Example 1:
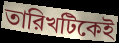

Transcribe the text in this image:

তারিখটিকেই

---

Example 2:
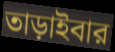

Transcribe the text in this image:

তাড়াইবার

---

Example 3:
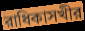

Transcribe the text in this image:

রাধিকাসখীর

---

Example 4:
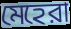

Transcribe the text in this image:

মেহেরা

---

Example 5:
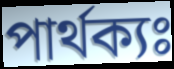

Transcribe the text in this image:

পার্থক্যঃ